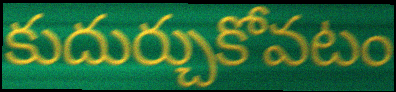
కుదుర్చుకోవటం